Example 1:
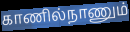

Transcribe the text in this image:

காணில்நாணும்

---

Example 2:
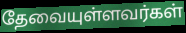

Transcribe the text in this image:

தேவையுள்ளவர்கள்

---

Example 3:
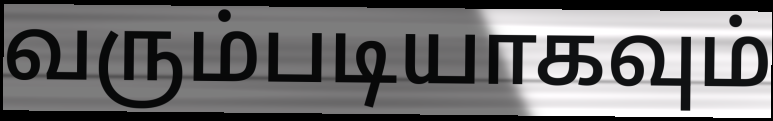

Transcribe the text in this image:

வரும்படியாகவும்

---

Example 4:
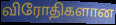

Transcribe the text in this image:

விரோதிகளான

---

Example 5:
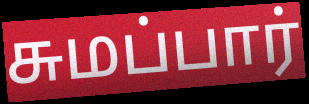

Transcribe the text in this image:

சுமப்பார்